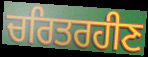
ਚਰਿਤਰਹੀਣ